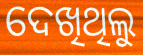
ଦେଖିଥିଲୁ